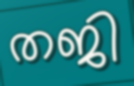
തജി